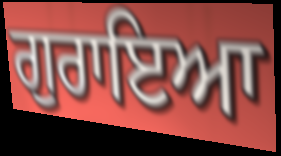
ਗੁਰਾਇਆ